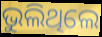
ଭୁଲିଥିଲେ